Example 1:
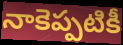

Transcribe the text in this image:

నాకెప్పటికీ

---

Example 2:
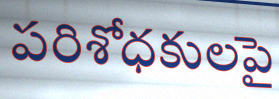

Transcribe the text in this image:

పరిశోధకులపై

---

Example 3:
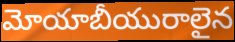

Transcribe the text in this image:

మోయాబీయురాలైన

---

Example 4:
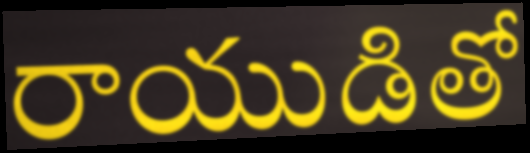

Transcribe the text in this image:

రాయుడితో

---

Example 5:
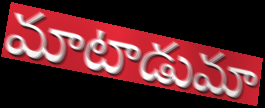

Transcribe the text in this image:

మాటాడుమా